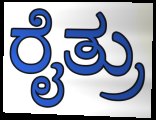
ರೈತ್ರು